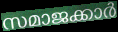
സമാജക്കാർ